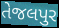
તેજલપુર